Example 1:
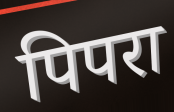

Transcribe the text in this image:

पिपरा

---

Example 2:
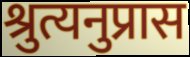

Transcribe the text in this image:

श्रुत्यनुप्रास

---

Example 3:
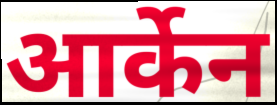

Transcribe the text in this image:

आर्केन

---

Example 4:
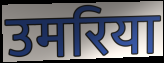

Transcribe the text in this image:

उमरिया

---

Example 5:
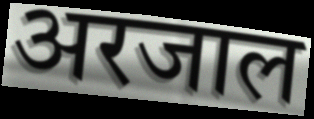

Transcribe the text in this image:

अरजाल